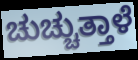
ಚುಚ್ಚುತ್ತಾಳೆ